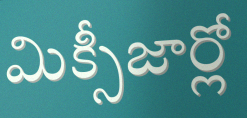
మిక్సీజార్లో